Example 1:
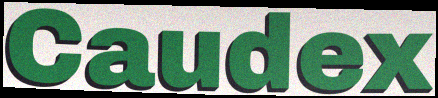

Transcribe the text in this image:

Caudex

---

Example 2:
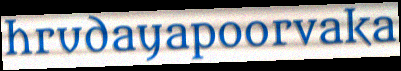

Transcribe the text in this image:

hrudayapoorvaka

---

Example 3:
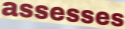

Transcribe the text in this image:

assesses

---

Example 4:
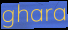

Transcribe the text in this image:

ghara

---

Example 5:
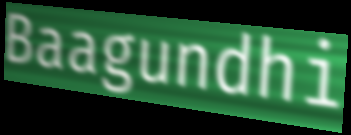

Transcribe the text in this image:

Baagundhi